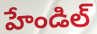
హేండిల్